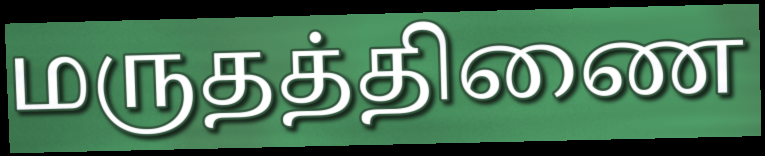
மருதத்திணை